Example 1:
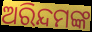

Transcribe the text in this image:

ଅରିନ୍ଦମଙ୍କ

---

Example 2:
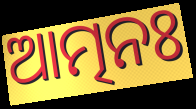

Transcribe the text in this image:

ଆତ୍ମନଃ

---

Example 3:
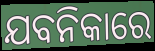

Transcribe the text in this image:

ଯବନିକାରେ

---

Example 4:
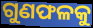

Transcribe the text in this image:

ଗୁଣଫଳକୁ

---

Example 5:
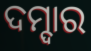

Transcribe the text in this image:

ଦମ୍ଦାର